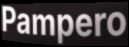
Pampero